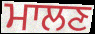
ਮਾਲਣ